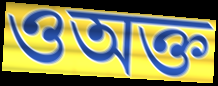
ওঅক্ত